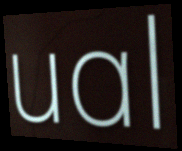
ual